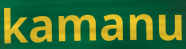
kamanu